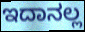
ಇದಾನಲ್ಲ